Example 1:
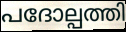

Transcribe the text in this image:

പദോല്പത്തി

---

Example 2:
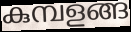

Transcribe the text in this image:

കുമ്പളങ്ങ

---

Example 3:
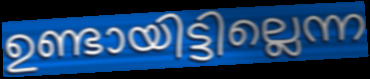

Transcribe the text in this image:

ഉണ്ടായിട്ടില്ലെന്ന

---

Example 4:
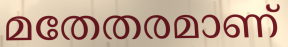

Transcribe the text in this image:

മതേതരമാണ്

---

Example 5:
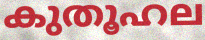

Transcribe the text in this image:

കുതൂഹല